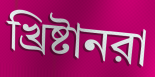
খ্রিষ্টানরা